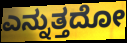
ಎನ್ನುತ್ತದೋ